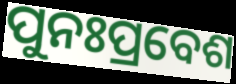
ପୁନଃପ୍ରବେଶ